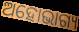
ଅହୋଭାଗ୍ୟ